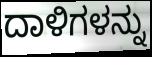
ದಾಳಿಗಳನ್ನು